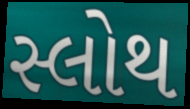
સ્લોથ